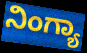
ನಿಂಗ್ಯಾ